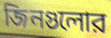
জিনগুলোর